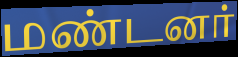
மண்டனர்